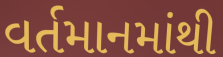
વર્તમાનમાંથી